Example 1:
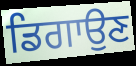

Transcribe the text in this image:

ਡਿਗਾਉਣ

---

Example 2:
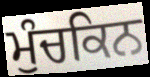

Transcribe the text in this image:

ਮੁੰਚਕਿਨ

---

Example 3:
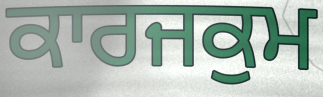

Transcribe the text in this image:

ਕਾਰਜਕੁਮ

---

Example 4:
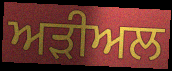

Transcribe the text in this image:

ਅੜੀਅਲ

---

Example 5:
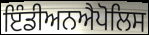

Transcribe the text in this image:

ਇੰਡੀਅਨਐਪੋਲਿਸ